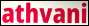
athvani